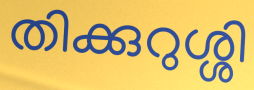
തിക്കുറുശ്ശി